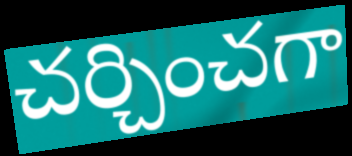
చర్చించగా